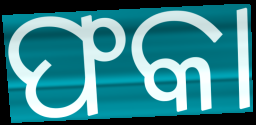
ଫକା